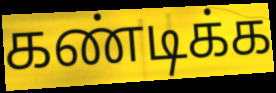
கண்டிக்க